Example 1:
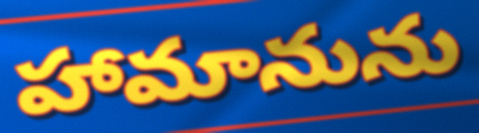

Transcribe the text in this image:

హామానును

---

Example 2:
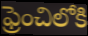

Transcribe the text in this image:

ఫ్రెంచిలోకి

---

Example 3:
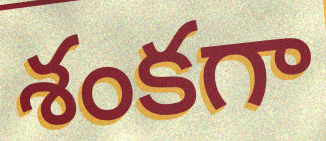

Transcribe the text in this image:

శంకగా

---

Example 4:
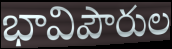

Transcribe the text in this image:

భావిపౌరుల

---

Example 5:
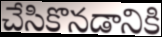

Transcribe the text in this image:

చేసికొనడానికి